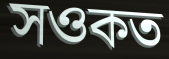
সওকত